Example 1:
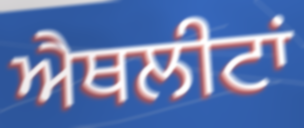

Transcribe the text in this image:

ਐਥਲੀਟਾਂ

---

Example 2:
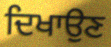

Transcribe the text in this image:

ਦਿਖਾਉਣ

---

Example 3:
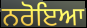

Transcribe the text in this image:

ਨਰੋਇਆ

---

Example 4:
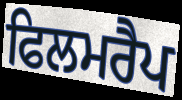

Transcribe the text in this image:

ਫਿਲਮਰੈਪ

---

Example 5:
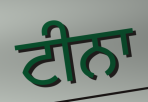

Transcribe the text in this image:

ਟੀਨਾ